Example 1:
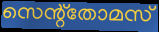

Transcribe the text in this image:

സെന്റ്തോമസ്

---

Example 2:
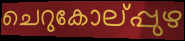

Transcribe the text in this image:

ചെറുകോല്പ്പുഴ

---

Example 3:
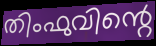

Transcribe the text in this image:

തിംഫുവിന്റെ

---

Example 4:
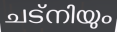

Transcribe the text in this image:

ചട്നിയും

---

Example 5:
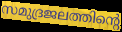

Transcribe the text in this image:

സമുദ്രജലത്തിന്റെ